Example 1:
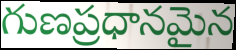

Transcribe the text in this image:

గుణప్రధానమైన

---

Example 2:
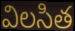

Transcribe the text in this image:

విలసిత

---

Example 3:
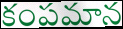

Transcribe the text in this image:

కంపమాన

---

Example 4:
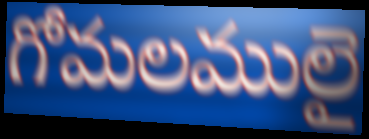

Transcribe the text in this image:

గోమలములై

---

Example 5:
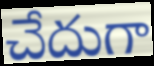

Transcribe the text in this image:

చేదుగా